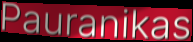
Pauranikas